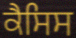
ਕੈਸਿਸ